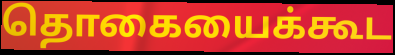
தொகையைக்கூட